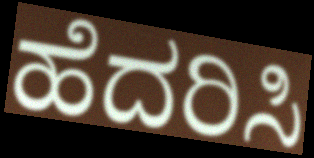
ಹೆದರಿಸಿ